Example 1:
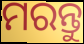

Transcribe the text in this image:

ମରନ୍ତୁ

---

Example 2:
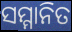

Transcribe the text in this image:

ସମ୍ମାନିତ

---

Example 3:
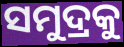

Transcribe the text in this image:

ସମୁଦ୍ରକୁ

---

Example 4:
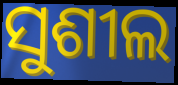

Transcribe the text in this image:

ସୁଶୀଲ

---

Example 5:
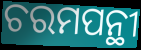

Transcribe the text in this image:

ଚରମପନ୍ଥୀ